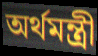
অর্থমন্ত্রী